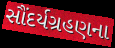
સૌંદર્યગ્રહણના